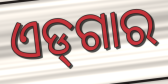
ଏଡ୍‌ଗାର